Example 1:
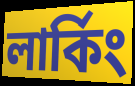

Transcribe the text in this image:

লার্কিং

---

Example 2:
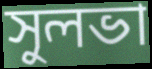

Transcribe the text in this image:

সুলভা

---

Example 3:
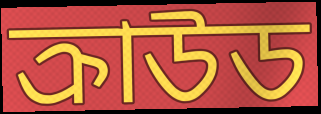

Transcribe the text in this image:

ক্রাউড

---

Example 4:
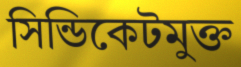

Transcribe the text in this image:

সিন্ডিকেটমুক্ত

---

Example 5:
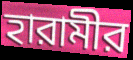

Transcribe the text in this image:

হারামীর